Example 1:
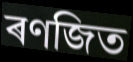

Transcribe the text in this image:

ৰণজিত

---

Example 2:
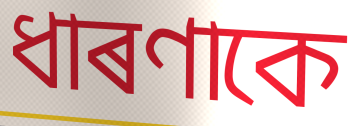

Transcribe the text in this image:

ধাৰণাকে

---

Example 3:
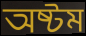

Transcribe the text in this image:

অষ্টম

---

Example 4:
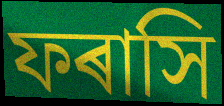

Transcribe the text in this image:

ফৰাসি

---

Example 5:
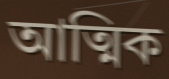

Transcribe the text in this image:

আত্মিক